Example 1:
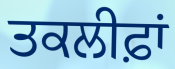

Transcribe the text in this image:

ਤਕਲੀਫ਼ਾਂ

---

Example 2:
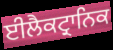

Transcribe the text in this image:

ਈਲੈਕਟ੍ਰਾਨਿਕ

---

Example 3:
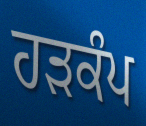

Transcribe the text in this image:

ਹਡ਼ਕੰਪ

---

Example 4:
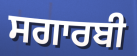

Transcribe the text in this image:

ਸਗਾਰਬੀ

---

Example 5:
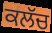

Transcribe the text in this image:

ਕਲੱਚ